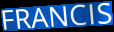
FRANCIS